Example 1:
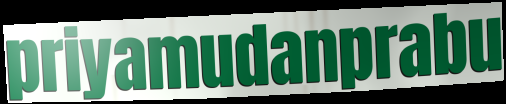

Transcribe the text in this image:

priyamudanprabu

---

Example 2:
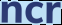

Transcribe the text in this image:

ncr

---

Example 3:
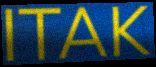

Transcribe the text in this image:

ITAK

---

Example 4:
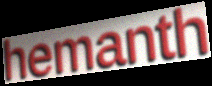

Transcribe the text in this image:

hemanth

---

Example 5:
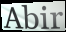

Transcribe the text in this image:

Abir